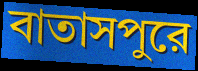
বাতাসপুরে